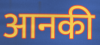
आनकी